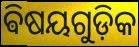
ଵିଷୟଗୁଡ଼ିକ